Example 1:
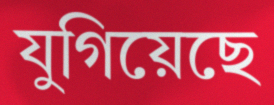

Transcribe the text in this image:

যুগিয়েছে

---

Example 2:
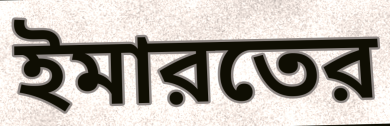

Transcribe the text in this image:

ইমারতের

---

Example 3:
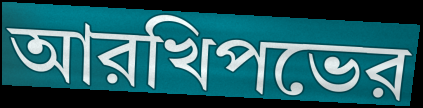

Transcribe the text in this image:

আরখিপভের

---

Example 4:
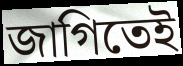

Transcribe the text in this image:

জাগিতেই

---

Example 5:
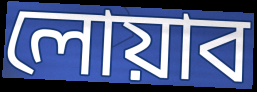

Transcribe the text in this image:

লোয়াব